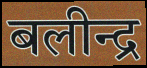
बलीन्द्र